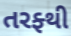
તરફ્થી